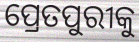
ପ୍ରେତପୁରୀକୁ